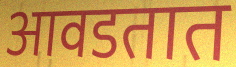
आवडतात